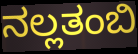
ನಲ್ಲತಂಬಿ